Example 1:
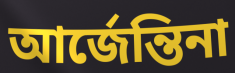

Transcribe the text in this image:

আর্জেন্তিনা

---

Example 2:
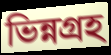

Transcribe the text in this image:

ভিন্নগ্রহ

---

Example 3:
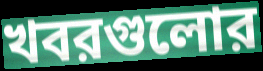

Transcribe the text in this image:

খবরগুলোর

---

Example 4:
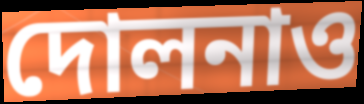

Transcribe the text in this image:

দোলনাও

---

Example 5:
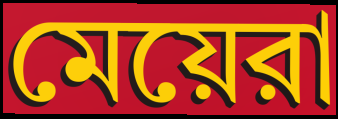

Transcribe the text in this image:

মেয়েরা